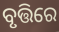
ବୃତ୍ତିରେ